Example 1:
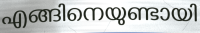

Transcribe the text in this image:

എങ്ങിനെയുണ്ടായി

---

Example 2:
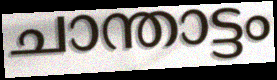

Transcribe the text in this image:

ചാന്താട്ടം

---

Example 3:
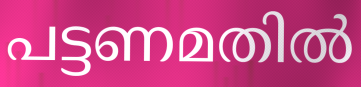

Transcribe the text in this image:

പട്ടണമതിൽ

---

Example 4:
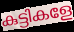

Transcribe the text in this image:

കുട്ടികളേ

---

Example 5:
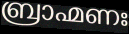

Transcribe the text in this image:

ബ്രാഹ്മണഃ